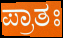
ಪ್ರಾತಃ